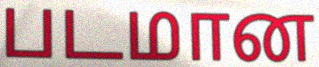
படமான